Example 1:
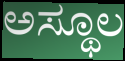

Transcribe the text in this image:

ಅಸ್ಥೂಲ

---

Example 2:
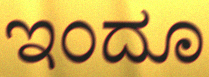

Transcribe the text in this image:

ಇಂದೂ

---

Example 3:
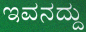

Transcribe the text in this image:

ಇವನದ್ದು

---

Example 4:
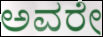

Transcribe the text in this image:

ಅವರೇ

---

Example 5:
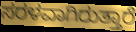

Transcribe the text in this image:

ಸರಳವಾಗಿರುತ್ತಾರೆ